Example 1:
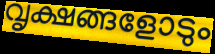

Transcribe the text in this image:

വൃക്ഷങ്ങളോടും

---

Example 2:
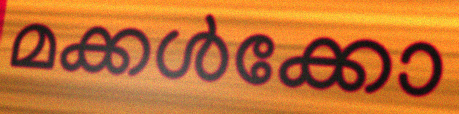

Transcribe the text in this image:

മക്കൾക്കോ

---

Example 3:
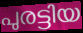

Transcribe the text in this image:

പുരട്ടിയ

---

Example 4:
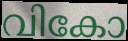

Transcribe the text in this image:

വികോ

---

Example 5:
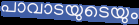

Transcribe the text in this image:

പാവാടയുടെയും